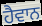
ਹੈਵਾਨ